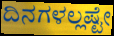
ದಿನಗಳಲ್ಲಷ್ಟೇ